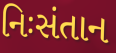
નિઃસંતાન